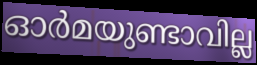
ഓർമയുണ്ടാവില്ല